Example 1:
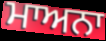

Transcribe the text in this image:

ਮਾਅਨਾ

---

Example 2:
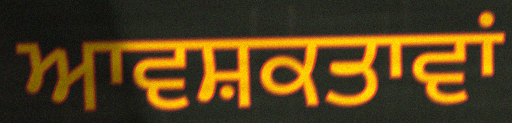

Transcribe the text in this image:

ਆਵਸ਼ਕਤਾਵਾਂ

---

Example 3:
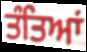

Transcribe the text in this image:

ਤੰਤਿਆਂ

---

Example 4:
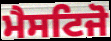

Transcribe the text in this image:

ਮੈਸਟਿਜੋ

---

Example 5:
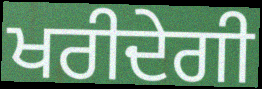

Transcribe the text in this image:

ਖਰੀਦੇਗੀ